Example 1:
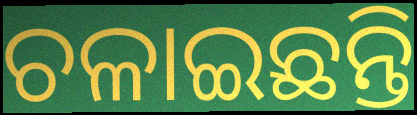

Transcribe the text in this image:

ଚଳାଇଛନ୍ତି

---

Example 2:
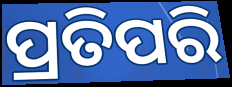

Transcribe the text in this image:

ପ୍ରତିପରି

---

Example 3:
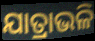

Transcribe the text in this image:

ଯାତ୍ରାଭଳି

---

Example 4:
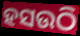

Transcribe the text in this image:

ହସଉଠି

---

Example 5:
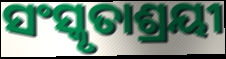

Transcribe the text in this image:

ସଂସ୍କୃତାଶ୍ରୟୀ